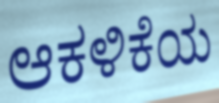
ಆಕಳಿಕೆಯ